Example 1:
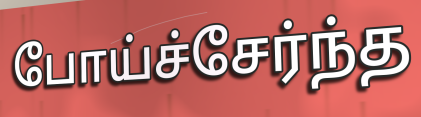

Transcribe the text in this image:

போய்ச்சேர்ந்த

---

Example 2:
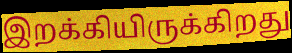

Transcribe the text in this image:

இறக்கியிருக்கிறது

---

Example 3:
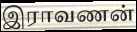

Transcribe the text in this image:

இராவணன்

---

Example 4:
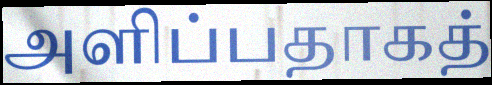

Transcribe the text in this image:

அளிப்பதாகத்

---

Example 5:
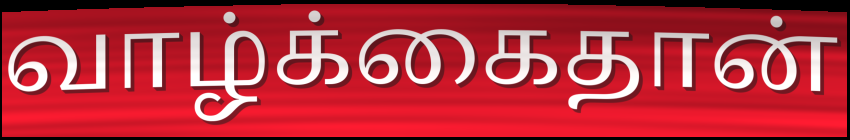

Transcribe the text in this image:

வாழ்க்கைதான்